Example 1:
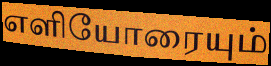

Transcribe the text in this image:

எளியோரையும்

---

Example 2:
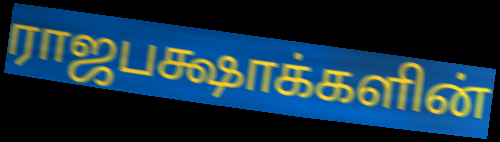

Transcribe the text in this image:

ராஜபக்ஷாக்களின்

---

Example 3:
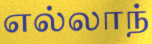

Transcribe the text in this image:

எல்லாந்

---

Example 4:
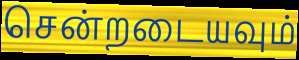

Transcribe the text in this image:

சென்றடையவும்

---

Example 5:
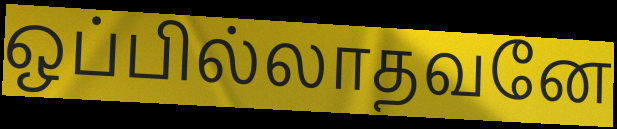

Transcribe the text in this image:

ஒப்பில்லாதவனே